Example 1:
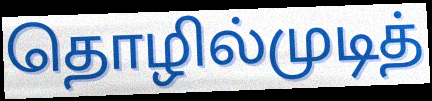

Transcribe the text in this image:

தொழில்முடித்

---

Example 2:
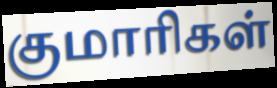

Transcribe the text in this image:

குமாரிகள்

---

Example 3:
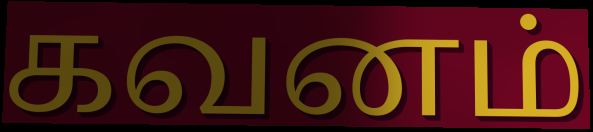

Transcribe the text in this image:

கவனம்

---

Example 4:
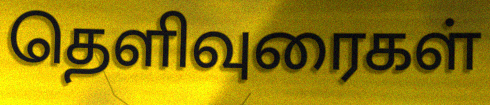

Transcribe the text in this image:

தெளிவுரைகள்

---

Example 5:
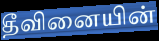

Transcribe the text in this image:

தீவினையின்